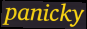
panicky